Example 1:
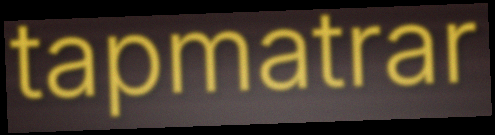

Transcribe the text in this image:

tapmatrar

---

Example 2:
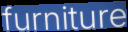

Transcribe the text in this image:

furniture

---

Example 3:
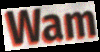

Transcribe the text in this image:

Wam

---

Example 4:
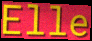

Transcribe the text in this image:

Elle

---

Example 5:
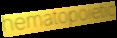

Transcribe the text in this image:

hematopoietic